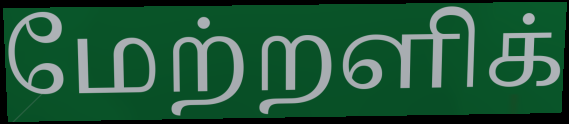
மேற்றளிக்